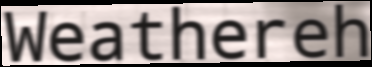
Weathereh